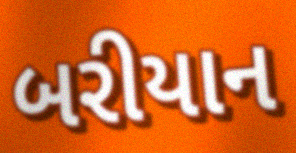
બરીયાન